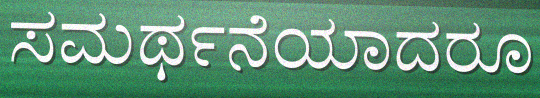
ಸಮರ್ಥನೆಯಾದರೂ